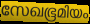
സേഖഭൂമിയം